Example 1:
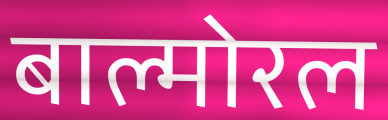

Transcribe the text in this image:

बाल्‍मोरल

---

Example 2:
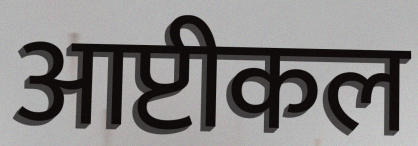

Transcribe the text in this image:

आप्टीकल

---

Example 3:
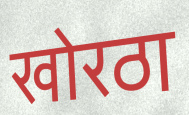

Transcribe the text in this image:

खोरठा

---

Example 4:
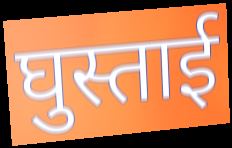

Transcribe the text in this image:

घुस्ताई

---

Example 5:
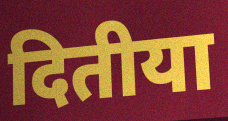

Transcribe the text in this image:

दितीया